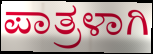
ಪಾತ್ರಳಾಗಿ